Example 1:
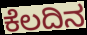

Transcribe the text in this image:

ಕೆಲದಿನ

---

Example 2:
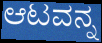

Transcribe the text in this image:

ಆಟವನ್ನ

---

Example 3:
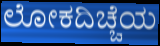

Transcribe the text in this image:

ಲೋಕದಿಚ್ಚೆಯ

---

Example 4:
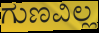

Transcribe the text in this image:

ಗುಣವಿಲ್ಲ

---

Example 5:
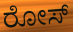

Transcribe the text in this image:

ರೋಸ್